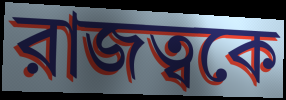
রাজত্বকে